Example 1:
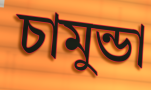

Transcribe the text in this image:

চামুন্ডা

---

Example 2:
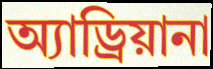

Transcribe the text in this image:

অ্যাড্রিয়ানা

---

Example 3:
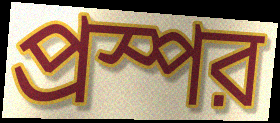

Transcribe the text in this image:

প্রস্পর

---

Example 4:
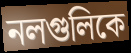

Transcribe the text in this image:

নলগুলিকে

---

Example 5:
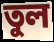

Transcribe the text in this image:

তুল